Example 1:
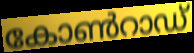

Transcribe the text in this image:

കോൺറാഡ്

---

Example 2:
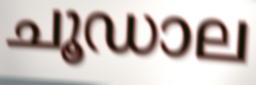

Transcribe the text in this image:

ചൂഡാല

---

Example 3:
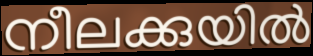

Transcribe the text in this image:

നീലക്കുയിൽ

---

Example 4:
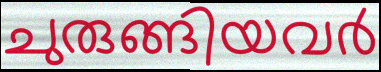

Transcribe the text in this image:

ചുരുങ്ങിയവർ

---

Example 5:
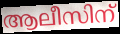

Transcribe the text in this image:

ആലീസിന്